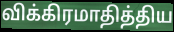
விக்கிரமாதித்திய